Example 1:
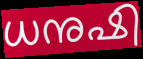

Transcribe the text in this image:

ധനുഷി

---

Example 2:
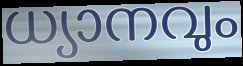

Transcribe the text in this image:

ധ്യാനവും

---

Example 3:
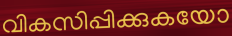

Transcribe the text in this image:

വികസിപ്പിക്കുകയോ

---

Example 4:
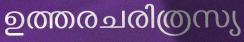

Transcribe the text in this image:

ഉത്തരചരിത്രസ്യ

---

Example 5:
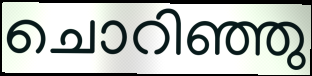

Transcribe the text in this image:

ചൊറിഞ്ഞു